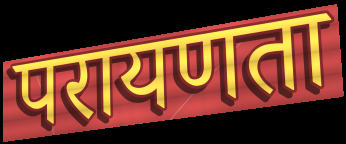
परायणता